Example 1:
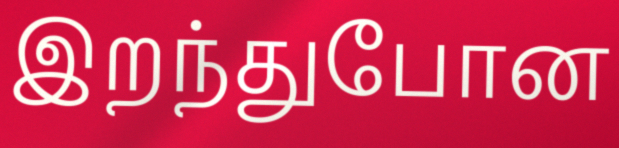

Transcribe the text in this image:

இறந்துபோன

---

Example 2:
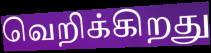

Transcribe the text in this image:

வெறிக்கிறது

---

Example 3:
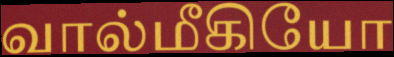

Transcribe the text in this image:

வால்மீகியோ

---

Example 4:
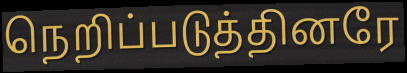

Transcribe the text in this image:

நெறிப்படுத்தினரே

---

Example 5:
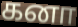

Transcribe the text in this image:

கனா